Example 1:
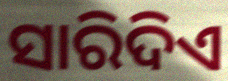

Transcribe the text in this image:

ସାରିଦିଏ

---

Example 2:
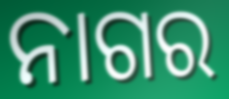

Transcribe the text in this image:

ନାଗର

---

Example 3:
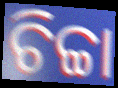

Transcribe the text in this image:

ଚିଚ୍ଚା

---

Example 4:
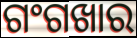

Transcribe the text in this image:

ଗଂଗଖାର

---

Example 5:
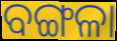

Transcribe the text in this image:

ବଙ୍ଗଳା